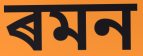
ৰমন